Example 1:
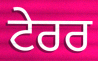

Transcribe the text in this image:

ਟੇਰਰ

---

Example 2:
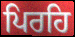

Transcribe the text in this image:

ਪਿਰਹਿ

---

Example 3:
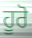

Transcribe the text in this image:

ਹੂਰੋ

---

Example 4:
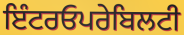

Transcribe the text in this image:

ਇੰਟਰਓਪਰੇਬਿਲਟੀ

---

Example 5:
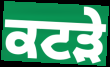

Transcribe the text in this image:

ਕਟੜੇ